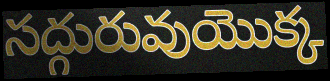
సద్గురువుయొక్క